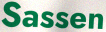
Sassen